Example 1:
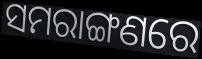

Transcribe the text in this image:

ସମରାଙ୍ଗଣରେ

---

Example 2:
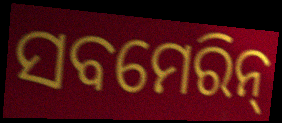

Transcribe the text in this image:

ସବମେରିନ୍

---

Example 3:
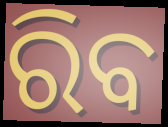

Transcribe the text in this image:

ରିବ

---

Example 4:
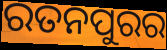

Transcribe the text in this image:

ରତନପୁରର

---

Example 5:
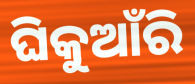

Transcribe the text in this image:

ଘିକୁଆଁରି